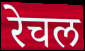
रेचल